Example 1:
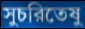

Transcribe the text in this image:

সুচরিতেষু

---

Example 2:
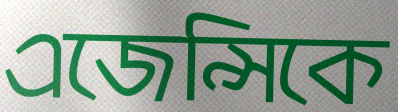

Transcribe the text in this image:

এজেন্সিকে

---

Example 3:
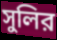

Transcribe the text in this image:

সুলির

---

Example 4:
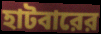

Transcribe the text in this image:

হাটবারের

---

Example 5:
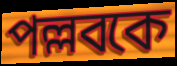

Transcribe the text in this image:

পল্লবকে